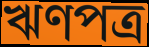
ঋণপত্র